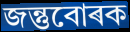
জন্তুবোৰক